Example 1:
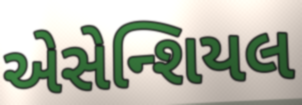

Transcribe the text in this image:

એસેન્શિયલ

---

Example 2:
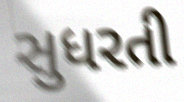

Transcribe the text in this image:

સુધરતી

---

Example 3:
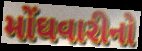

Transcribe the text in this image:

મોંઘવારીનો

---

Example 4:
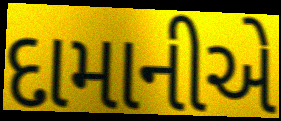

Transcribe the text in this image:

દામાનીએ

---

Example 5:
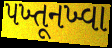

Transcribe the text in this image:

પખ્તૂનખ્વા